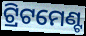
ଟ୍ରିଟମେଣ୍ଟ